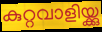
കുറ്റവാളിയ്ക്കു